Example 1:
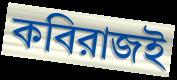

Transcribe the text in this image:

কবিরাজই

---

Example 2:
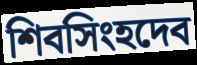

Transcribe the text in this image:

শিবসিংহদেব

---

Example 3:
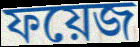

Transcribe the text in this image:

ফয়েজ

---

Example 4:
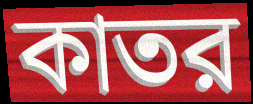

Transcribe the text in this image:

কাতর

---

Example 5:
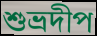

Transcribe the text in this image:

শুভ্রদীপ